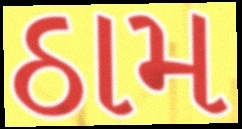
ઠામ